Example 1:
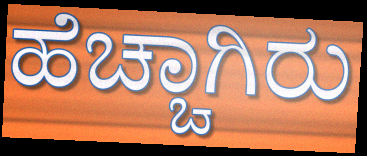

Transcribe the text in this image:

ಹೆಚ್ಚಾಗಿರು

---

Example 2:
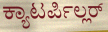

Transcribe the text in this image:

ಕ್ಯಾಟರ್ಪಿಲ್ಲರ್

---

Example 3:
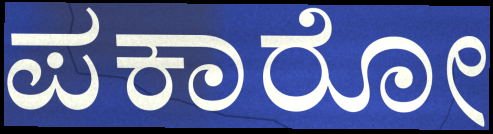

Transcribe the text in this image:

ಪಕಾರೋ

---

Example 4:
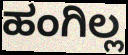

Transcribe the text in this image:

ಹಂಗಿಲ್ಲ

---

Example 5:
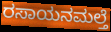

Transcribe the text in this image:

ರಸಾಯನಮಲ್ತೆ